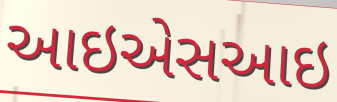
આઇએસઆઇ